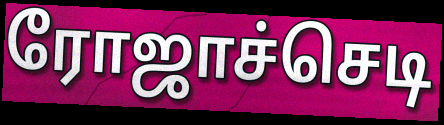
ரோஜாச்செடி